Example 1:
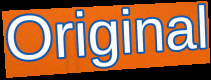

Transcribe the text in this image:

Original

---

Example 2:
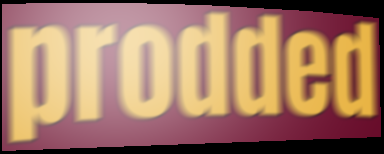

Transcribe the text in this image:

prodded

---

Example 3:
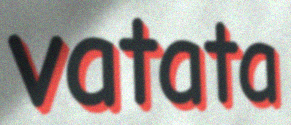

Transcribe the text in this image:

vatata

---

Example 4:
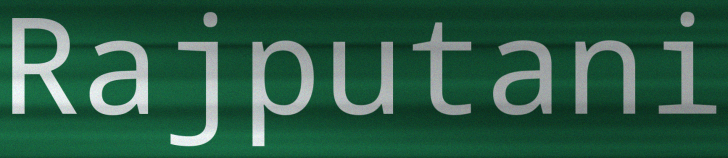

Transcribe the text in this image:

Rajputani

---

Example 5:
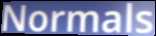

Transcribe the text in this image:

Normals